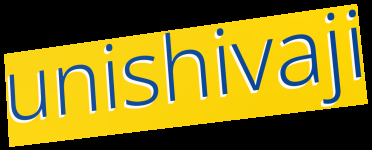
unishivaji